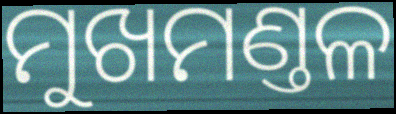
ମୁଖମଣ୍ତଳ